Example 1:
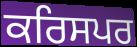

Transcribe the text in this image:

ਕਰਿਸਪਰ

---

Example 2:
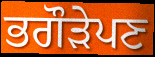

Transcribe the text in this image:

ਭਗੌੜੇਪਣ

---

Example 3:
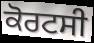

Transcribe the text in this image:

ਕੋਰਟਸੀ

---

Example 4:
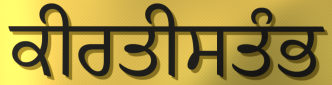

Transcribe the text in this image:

ਕੀਰਤੀਸਤੰਭ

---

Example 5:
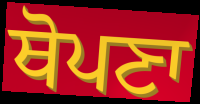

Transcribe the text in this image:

ਥੋਪਣਾ